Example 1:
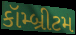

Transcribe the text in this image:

કૉમ્બ્રીટમ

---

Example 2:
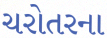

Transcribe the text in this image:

ચરોતરના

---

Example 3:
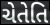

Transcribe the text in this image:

ચેતેતિ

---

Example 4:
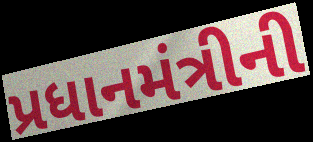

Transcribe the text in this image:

પ્રધાનમંત્રીની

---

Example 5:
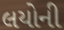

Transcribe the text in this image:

લયોની